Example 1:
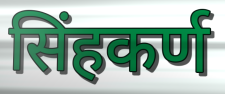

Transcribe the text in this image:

सिंहकर्ण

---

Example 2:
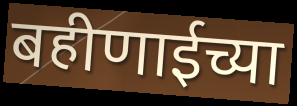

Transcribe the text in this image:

बहीणाईच्या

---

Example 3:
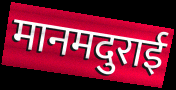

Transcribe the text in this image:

मानमदुराई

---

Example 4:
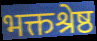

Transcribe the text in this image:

भक्तश्रेष्ठ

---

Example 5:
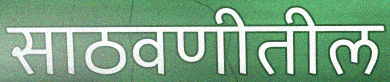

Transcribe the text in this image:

साठवणीतील